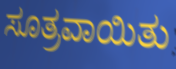
ಸೂತ್ರವಾಯಿತು